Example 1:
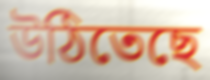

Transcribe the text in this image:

উঠিতেছে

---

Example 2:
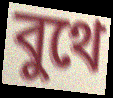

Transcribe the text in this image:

বুথে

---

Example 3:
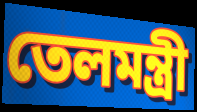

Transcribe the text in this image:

তেলমন্ত্রী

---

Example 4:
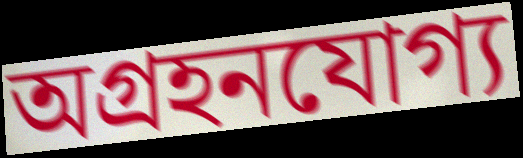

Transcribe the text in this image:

অগ্রহনযোগ্য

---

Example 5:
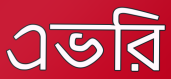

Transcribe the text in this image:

এভরি